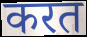
करत